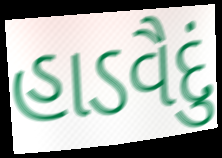
હાડવૈદું